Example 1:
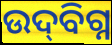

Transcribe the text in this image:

ଉଦ୍‍ବିଗ୍ନ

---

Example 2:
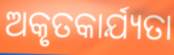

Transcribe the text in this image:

ଅକୃତକାର୍ଯ୍ୟତା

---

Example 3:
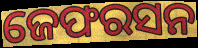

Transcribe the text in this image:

ଜେଫରସନ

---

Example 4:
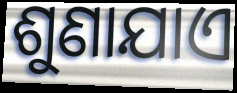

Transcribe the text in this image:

ଶୁଣାଯାଏ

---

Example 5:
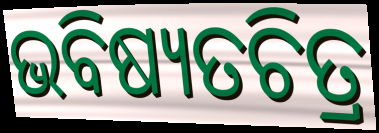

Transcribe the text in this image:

ଭବିଷ୍ୟତଚିତ୍ର